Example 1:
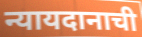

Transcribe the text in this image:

न्यायदानाची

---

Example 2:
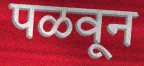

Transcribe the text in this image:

पळवून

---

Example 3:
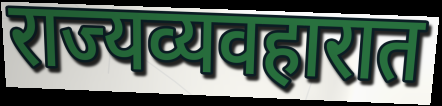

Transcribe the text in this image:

राज्यव्यवहारात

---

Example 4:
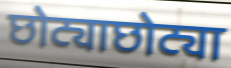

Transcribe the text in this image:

छोट्याछोट्या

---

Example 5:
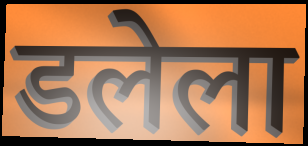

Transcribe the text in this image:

डलेला